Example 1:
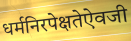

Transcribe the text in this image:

धर्मनिरपेक्षतेऐवजी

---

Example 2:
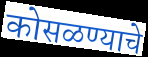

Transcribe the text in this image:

कोसळण्याचे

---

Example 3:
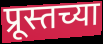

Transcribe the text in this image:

प्रूस्तच्या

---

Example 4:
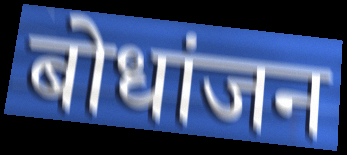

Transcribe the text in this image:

बोधांजन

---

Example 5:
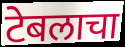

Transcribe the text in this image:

टेबलाचा